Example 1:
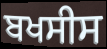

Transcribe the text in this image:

ਬਖਸੀਸ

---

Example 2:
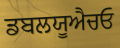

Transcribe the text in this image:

ਡਬਲਯੂਐਚਓ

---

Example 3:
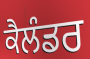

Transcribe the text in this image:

ਕੈਲੰਡਰ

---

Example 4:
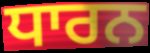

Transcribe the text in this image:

ਧਾਰਨ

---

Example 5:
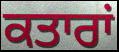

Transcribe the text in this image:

ਕਤਾਰਾਂ